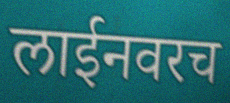
लाईनवरच